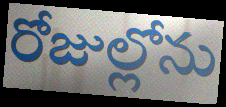
రోజుల్లోను